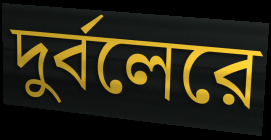
দুর্বলেরে